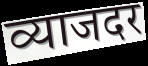
व्याजदर